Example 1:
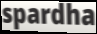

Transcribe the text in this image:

spardha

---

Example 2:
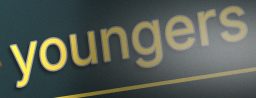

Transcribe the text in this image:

youngers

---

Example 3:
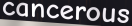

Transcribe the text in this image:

cancerous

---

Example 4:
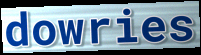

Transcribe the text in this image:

dowries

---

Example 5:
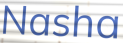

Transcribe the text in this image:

Nasha